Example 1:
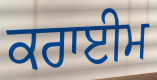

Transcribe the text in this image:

ਕਰਾਈਮ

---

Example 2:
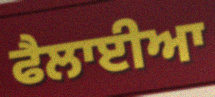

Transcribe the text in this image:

ਫੈਲਾਈਆ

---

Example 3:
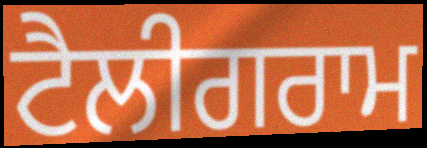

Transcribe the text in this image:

ਟੈਲੀਗਰਾਮ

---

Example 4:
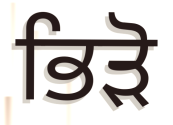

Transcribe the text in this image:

ਭਿੜੋ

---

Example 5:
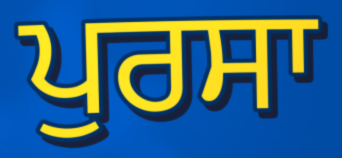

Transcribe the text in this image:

ਪੁਰਸਾ